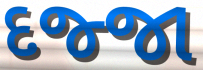
દજ્જા